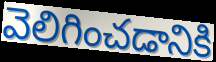
వెలిగించడానికి